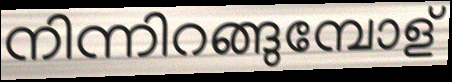
നിന്നിറങ്ങുമ്പോള്